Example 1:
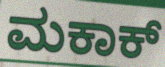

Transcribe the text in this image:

ಮಕಾಕ್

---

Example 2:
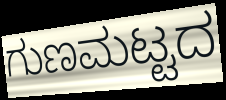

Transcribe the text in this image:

ಗುಣಮಟ್ಟದ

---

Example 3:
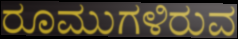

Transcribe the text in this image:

ರೂಮುಗಳಿರುವ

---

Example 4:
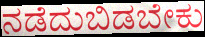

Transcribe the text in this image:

ನಡೆದುಬಿಡಬೇಕು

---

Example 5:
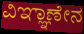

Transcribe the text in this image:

ವಿಞ್ಞಾಣೇನ